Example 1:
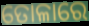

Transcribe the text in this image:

ତୋଳାରେ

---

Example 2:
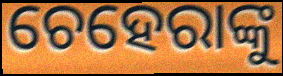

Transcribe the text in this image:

ଚେହେରାଙ୍କୁ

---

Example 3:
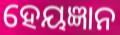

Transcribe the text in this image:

ହେୟଜ୍ଞାନ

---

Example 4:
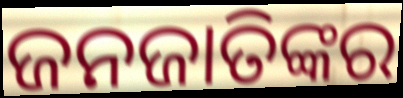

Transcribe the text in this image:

ଜନଜାତିଙ୍କର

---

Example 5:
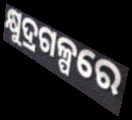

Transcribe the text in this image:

କ୍ଷୁଦ୍ରଗଳ୍ପରେ